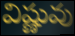
విష్ణువు